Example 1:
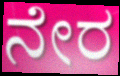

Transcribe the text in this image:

ನೇರ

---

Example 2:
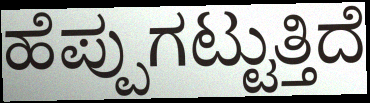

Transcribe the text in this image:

ಹೆಪ್ಪುಗಟ್ಟುತ್ತಿದೆ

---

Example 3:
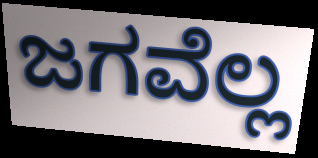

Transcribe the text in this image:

ಜಗವೆಲ್ಲ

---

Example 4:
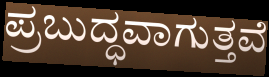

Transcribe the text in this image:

ಪ್ರಬುದ್ಧವಾಗುತ್ತವೆ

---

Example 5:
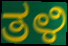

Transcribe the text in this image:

ತಳಿ